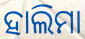
ହାଲିମା